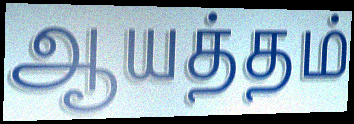
ஆயத்தம்